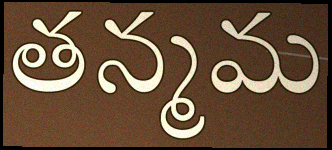
తన్మమ